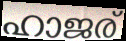
ഹാജര്